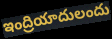
ఇంద్రియాదులందు